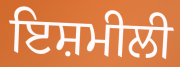
ਇਸ਼ਮੀਲੀ